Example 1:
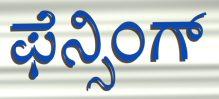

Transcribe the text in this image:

ಫೆನ್ಸಿಂಗ್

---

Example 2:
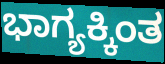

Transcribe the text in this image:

ಭಾಗ್ಯಕ್ಕಿಂತ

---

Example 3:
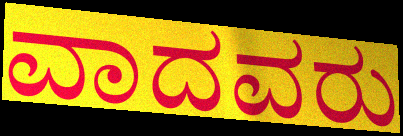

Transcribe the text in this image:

ವಾದವರು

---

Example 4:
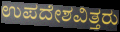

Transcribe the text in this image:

ಉಪದೇಶವಿತ್ತರು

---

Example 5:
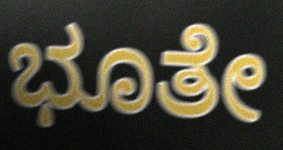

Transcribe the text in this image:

ಭೂತೇ